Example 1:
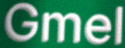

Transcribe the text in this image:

Gmel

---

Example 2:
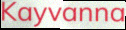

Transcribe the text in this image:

Kayvanna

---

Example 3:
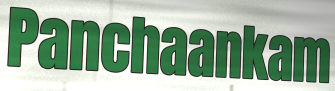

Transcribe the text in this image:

Panchaankam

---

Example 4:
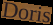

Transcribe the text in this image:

Doris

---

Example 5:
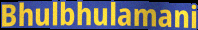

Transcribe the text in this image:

Bhulbhulamani